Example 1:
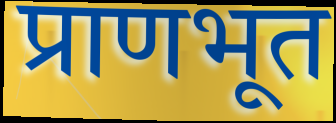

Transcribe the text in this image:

प्राणभूत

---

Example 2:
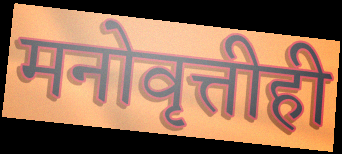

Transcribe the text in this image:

मनोवृत्तीही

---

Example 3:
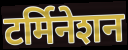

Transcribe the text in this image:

टर्मिनेशन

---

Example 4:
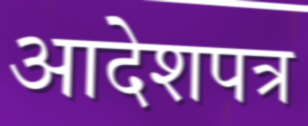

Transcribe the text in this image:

आदेशपत्र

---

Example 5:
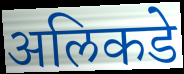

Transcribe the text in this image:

अलिकडे